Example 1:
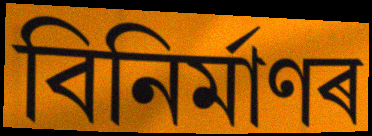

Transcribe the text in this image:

বিনিৰ্মাণৰ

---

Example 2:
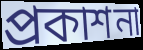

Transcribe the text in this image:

প্ৰকাশনা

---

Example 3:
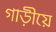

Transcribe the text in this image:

গাড়ীয়ে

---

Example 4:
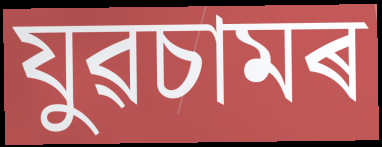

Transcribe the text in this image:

যুৱচামৰ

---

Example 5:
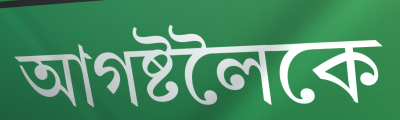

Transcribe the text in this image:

আগষ্টলৈকে